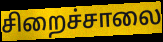
சிறைச்சாலை